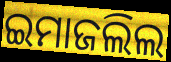
ଇମାଜଲିଲ